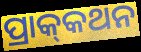
ପ୍ରାକ୍‌କଥନ